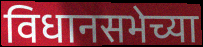
विधानसभेच्या